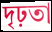
দৃঢ়তা